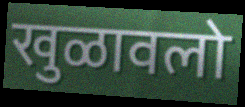
खुळावलो